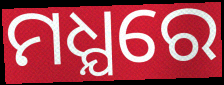
ମଧ୍ଯରେ